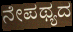
ನೇಪಥ್ಯದ